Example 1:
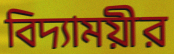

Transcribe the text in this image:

বিদ্যাময়ীর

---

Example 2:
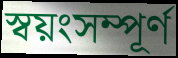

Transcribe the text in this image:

স্বয়ংসম্পূর্ণ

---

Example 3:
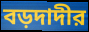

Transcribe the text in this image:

বড়দাদীর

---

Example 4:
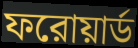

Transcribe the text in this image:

ফরোয়ার্ড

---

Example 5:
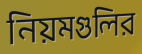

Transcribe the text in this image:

নিয়মগুলির